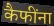
कैफींना